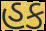
હક